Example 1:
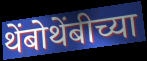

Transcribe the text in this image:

थेंबोथेंबीच्या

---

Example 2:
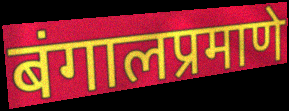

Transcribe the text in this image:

बंगालप्रमाणे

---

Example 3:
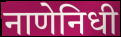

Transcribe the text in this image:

नाणेनिधी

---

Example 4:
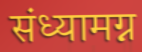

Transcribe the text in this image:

संध्यामग्न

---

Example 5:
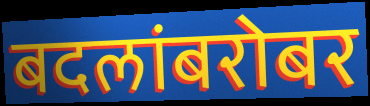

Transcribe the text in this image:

बदलांबरोबर